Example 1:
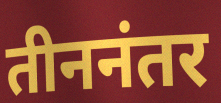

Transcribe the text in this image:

तीननंतर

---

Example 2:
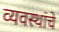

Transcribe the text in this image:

व्यवस्थांचे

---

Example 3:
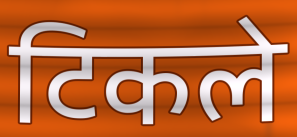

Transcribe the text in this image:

टिकले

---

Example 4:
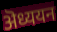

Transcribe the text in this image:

ऄध्ययन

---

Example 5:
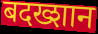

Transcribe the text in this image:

बदख्शान